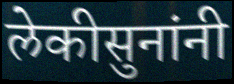
लेकीसुनांनी